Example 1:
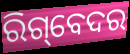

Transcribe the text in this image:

ରିଗ୍‌ବେଦର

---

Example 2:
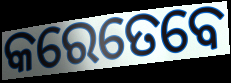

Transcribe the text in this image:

କରେତେବେ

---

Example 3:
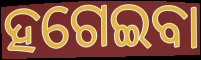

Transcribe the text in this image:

ହଗେଇବା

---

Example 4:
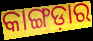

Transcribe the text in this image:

କାଙ୍ଗଡ଼ାର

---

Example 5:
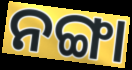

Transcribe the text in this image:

ନଙ୍ଗା